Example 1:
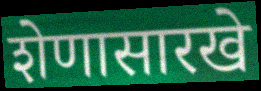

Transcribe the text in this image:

शेणासारखे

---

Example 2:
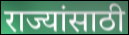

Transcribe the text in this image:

राज्यांसाठी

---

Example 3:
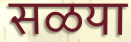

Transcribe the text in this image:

सळया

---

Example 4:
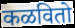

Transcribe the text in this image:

कळवितो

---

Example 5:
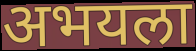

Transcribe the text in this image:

अभयला